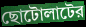
ছোটোলাটের